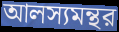
আলস্যমন্থর